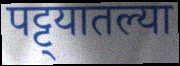
पट्ट्यातल्या